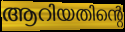
ആറിയതിന്റെ